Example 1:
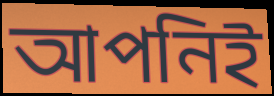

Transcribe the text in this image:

আপনিই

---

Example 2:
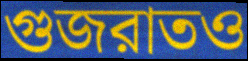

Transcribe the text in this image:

গুজরাতও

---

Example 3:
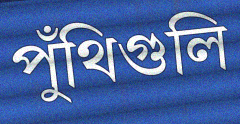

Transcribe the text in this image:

পুঁথিগুলি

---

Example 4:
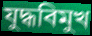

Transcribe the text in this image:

যুদ্ধবিমুখ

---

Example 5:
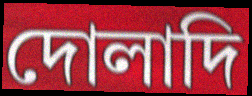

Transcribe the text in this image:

দোলাদি